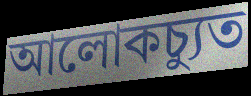
আলোকচ্যুত